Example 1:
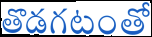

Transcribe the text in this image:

తొడగటంతో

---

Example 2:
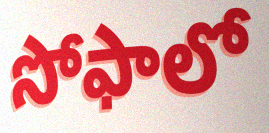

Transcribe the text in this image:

సోఫాలో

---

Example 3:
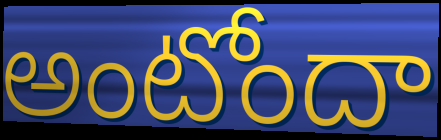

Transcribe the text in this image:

అంటోందా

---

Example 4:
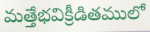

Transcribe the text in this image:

మత్తేభవిక్రీడితములో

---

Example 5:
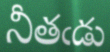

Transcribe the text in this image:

నీతఁడు